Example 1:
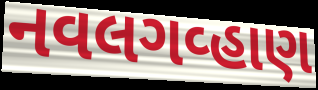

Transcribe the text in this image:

નવલગવ્હાણ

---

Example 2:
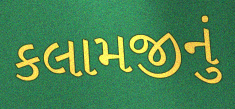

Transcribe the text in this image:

કલામજીનું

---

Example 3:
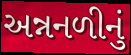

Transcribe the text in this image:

અન્નનળીનું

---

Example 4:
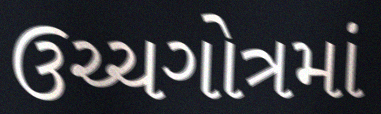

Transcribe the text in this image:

ઉચ્ચગોત્રમાં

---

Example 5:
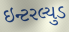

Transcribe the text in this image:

ઇન્ટરલ્યુડ